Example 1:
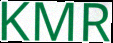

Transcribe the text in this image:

KMR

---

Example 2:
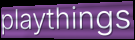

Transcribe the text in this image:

playthings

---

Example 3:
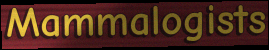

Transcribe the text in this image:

Mammalogists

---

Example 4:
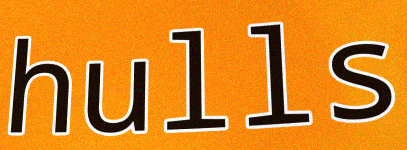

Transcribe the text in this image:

hulls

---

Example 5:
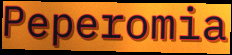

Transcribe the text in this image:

Peperomia